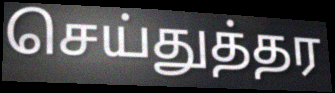
செய்துத்தர